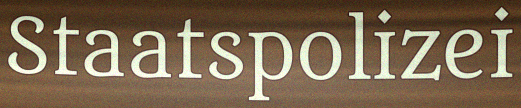
Staatspolizei